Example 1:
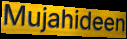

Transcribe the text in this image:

Mujahideen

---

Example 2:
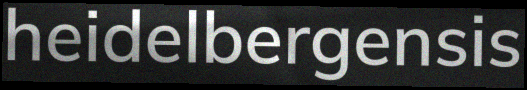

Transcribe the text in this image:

heidelbergensis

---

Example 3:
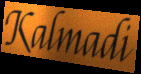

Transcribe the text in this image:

Kalmadi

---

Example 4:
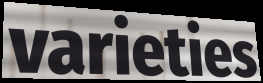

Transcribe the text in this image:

varieties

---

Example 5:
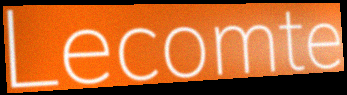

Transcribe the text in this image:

Lecomte